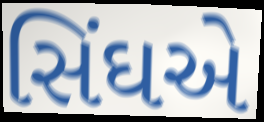
સિંઘએ